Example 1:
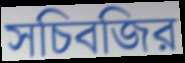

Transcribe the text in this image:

সচিবজির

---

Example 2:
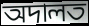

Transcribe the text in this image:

অদালত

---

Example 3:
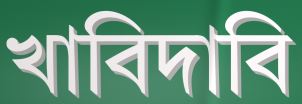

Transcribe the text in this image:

খাবিদাবি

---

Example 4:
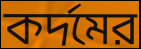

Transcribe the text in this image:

কর্দমের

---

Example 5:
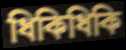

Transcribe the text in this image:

ধিকিধিকি